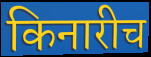
किनारीच